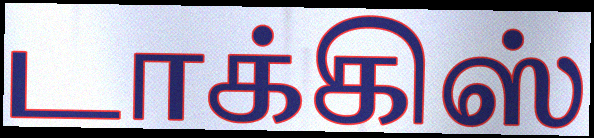
டாக்கிஸ்